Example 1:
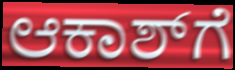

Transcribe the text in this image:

ಆಕಾಶ್‌ಗೆ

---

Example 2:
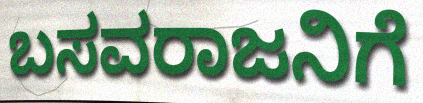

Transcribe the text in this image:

ಬಸವರಾಜನಿಗೆ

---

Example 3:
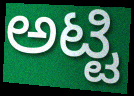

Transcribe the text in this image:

ಅಟ್ಟಿ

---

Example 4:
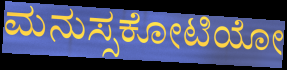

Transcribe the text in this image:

ಮನುಸ್ಸಕೋಟಿಯೋ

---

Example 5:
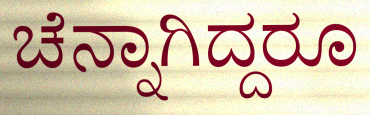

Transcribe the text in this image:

ಚೆನ್ನಾಗಿದ್ದರೂ